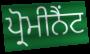
ਪ੍ਰੋਮੀਨੈਂਟ